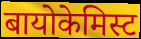
बायोकेमिस्ट